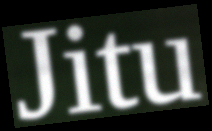
Jitu